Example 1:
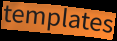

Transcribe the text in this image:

templates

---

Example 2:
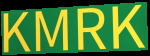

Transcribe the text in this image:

KMRK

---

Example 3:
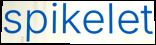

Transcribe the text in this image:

spikelet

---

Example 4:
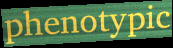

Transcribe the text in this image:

phenotypic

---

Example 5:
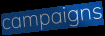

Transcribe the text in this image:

campaigns